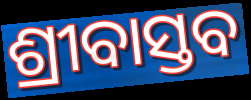
ଶ୍ରୀବାସ୍ତବ